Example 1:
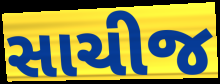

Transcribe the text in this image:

સાચીજ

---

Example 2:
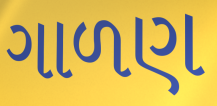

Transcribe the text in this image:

ગાળણ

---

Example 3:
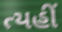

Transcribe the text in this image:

ત્યહીં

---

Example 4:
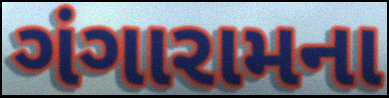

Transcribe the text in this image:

ગંગારામના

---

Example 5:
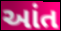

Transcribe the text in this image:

આંત